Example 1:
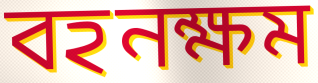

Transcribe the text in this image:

বহনক্ষম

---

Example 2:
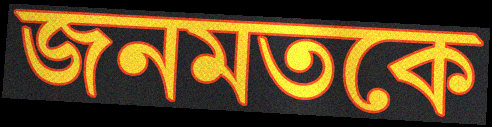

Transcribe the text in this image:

জনমতকে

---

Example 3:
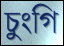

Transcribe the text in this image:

চুংগি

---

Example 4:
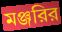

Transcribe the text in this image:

মঞ্জরির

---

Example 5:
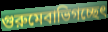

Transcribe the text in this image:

গুরুমেবাভিগচ্ছেৎ